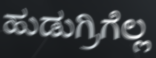
ಹುಡುಗ್ರಿಗೆಲ್ಲ